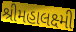
શ્રીમહાલક્ષ્મી